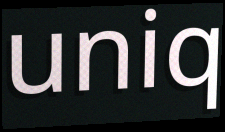
uniq